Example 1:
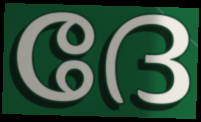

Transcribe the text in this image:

ദേ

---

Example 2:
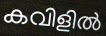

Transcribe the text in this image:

കവിളിൽ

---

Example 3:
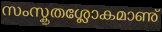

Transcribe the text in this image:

സംസ്കൃതശ്ലോകമാണു്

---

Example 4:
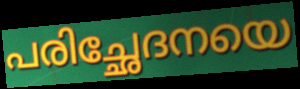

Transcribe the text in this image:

പരിച്ഛേദനയെ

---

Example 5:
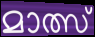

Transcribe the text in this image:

മാത്സ്